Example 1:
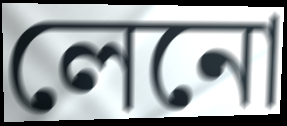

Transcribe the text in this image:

লেনো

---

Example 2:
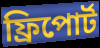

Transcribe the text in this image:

ফ্রিপোর্ট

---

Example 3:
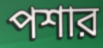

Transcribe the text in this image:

পশার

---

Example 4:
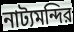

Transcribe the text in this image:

নাট্যমন্দির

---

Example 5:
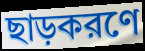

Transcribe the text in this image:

ছাড়করণে